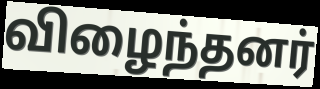
விழைந்தனர்